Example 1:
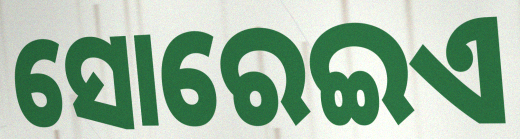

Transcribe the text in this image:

ସୋରେଇଏ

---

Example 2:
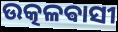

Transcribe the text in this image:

ଉତ୍କଳଵାସୀ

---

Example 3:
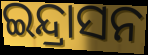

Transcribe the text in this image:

ଇନ୍ଦ୍ରାସନ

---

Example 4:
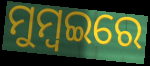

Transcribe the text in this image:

ମୁମ୍ବଇରେ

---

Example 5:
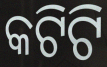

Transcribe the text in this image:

କଟିଟି